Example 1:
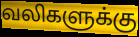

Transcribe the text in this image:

வலிகளுக்கு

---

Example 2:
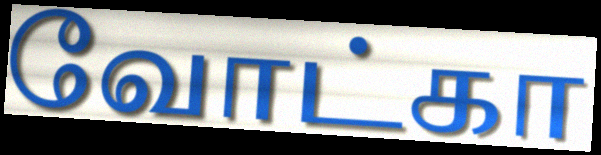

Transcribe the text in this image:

வோட்கா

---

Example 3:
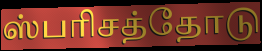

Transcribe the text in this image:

ஸ்பரிசத்தோடு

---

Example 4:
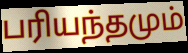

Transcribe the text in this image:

பரியந்தமும்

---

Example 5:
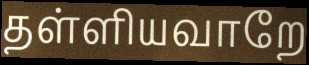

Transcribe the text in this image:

தள்ளியவாறே